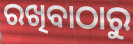
ରଖିବାଠାରୁ